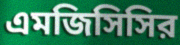
এমজিসিসির